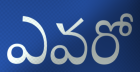
ఎవరో